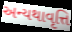
અન્યથાવૃત્તિ